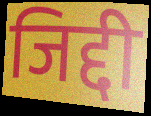
जिद्दी